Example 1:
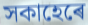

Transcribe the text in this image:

সকাহেৰে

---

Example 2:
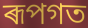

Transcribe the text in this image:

ৰূপগত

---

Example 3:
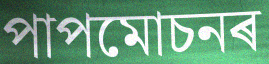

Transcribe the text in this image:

পাপমোচনৰ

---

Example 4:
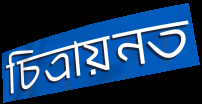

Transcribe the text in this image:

চিত্ৰায়নত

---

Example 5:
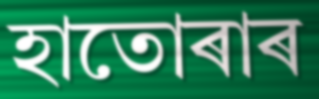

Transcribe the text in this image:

হাতোৰাৰ